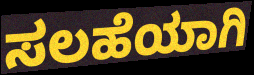
ಸಲಹೆಯಾಗಿ